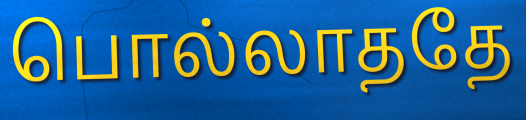
பொல்லாததே